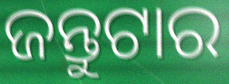
ଜନ୍ତୁଟାର